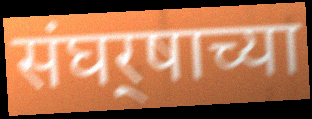
संघर्षाच्या